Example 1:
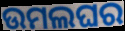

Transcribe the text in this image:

ଉମଲଘର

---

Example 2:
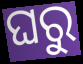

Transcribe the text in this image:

ଘରୁ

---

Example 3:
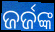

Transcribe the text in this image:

ଜର୍ଜଙ୍କ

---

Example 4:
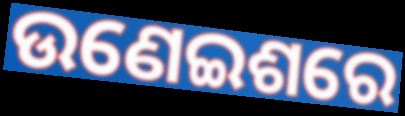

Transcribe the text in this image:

ଉଣେଇଶରେ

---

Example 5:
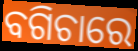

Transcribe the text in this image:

ବଗିଚାରେ